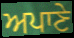
ਅਪਾਣੇ